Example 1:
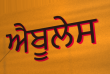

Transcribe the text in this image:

ਐਬੂਲੇਸ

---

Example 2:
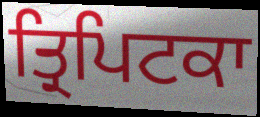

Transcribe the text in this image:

ਤ੍ਰਿਪਿਟਕਾ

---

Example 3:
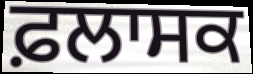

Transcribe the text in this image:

ਫ਼ਲਾਸਕ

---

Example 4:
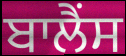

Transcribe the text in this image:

ਬਾਲੈਂਸ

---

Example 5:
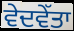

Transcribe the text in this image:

ਵੇਦਵੇੱਤਾ